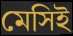
মেসিই